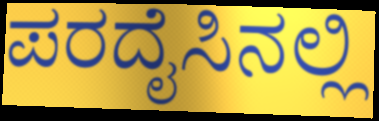
ಪರದೈಸಿನಲ್ಲಿ